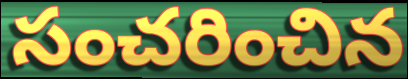
సంచరించిన